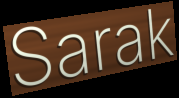
Sarak